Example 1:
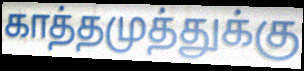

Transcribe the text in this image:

காத்தமுத்துக்கு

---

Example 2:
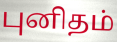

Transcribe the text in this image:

புனிதம்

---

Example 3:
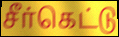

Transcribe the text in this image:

சீர்கெட்டு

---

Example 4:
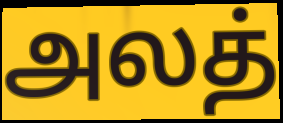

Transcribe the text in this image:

அலத்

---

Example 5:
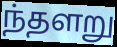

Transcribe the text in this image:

ந்தளறு